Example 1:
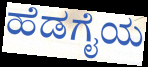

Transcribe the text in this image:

ಹೆಡಗೈಯ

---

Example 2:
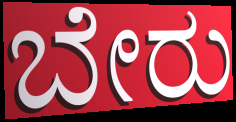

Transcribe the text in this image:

ಬೇರು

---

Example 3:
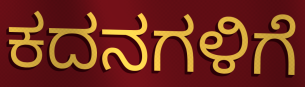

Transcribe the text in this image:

ಕದನಗಳಿಗೆ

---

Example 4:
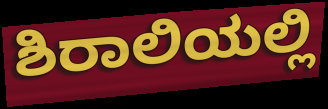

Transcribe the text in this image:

ಶಿರಾಲಿಯಲ್ಲಿ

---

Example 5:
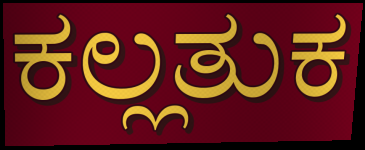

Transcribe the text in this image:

ಕಲ್ಲತುಕ